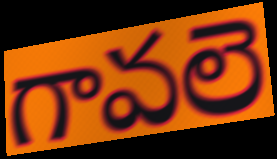
గావలె